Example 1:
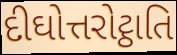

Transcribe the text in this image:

દીઘોત્તરોટ્ઠાતિ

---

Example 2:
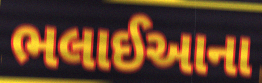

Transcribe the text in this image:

ભલાઈઆના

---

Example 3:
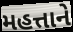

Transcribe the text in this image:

મહત્તાને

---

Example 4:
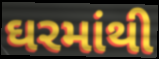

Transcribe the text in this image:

ઘરમાંથી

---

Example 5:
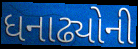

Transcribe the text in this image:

ધનાઢ્યોની